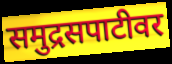
समुद्रसपाटीवर